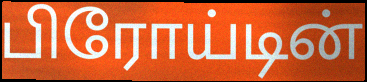
பிரோய்டின்